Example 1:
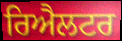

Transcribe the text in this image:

ਰਿਐਲਟਰ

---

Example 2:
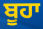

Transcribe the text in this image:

ਬੂਹਾ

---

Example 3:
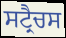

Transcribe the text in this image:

ਸਟ੍ਰੈਚਸ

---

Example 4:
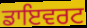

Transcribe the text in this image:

ਡਾਇਵਰਟ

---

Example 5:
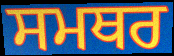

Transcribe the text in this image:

ਸਮਥਰ